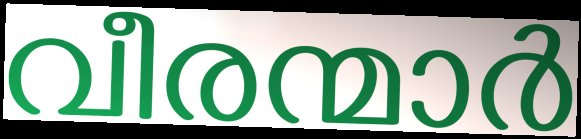
വീരന്മാർ